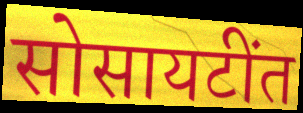
सोसायटींत